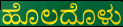
ಹೊಲದೊಳು